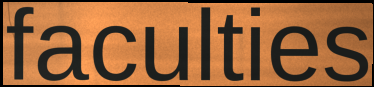
faculties